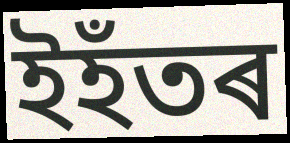
ইহঁতৰ